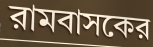
রামবাসকের